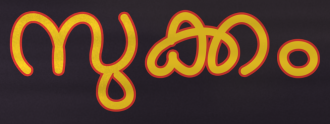
സുക്കം